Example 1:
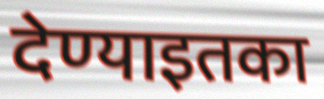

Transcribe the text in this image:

देण्याइतका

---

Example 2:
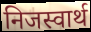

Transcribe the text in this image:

निजस्वार्थ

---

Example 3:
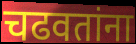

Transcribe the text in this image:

चढवतांना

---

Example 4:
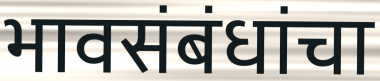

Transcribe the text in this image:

भावसंबंधांचा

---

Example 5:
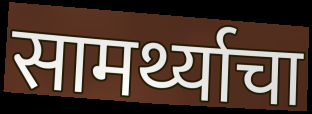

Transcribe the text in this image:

सामर्थ्याचा